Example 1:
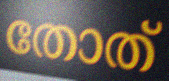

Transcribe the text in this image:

തോത്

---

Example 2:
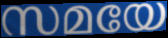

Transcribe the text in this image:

സമയേ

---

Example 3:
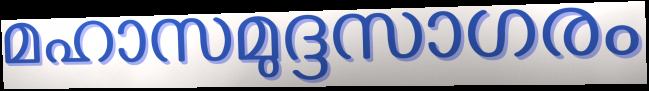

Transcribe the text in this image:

മഹാസമുദ്ദസാഗരം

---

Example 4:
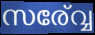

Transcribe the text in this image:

സര്വ്വേ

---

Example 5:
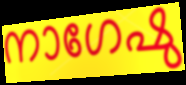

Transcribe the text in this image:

നാഗേഷു